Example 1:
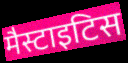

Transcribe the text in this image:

मैस्टाइटिस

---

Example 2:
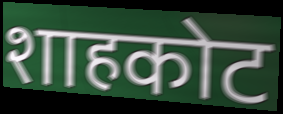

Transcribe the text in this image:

शाहकोट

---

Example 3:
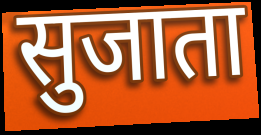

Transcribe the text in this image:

सुजाता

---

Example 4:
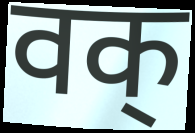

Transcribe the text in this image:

वक्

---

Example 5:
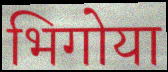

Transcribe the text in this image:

भिगोया